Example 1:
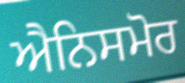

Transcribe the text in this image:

ਐਨਿਸਮੋਰ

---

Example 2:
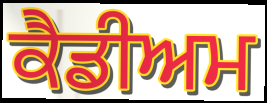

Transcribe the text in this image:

ਕੈਡੀਅਮ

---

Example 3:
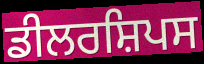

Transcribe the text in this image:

ਡੀਲਰਸ਼ਿਪਸ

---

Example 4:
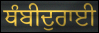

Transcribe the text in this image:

ਥੰਬੀਦੁਰਾਈ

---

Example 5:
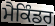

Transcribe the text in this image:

ਮੈਕਿੰਡਰ